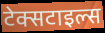
टेक्सटाइल्स